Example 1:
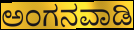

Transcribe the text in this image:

ಅಂಗನವಾಡಿ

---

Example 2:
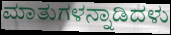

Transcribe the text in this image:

ಮಾತುಗಳನ್ನಾಡಿದಳು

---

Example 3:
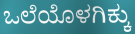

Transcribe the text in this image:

ಒಲೆಯೊಳಗಿಕ್ಕು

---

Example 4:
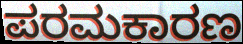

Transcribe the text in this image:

ಪರಮಕಾರಣ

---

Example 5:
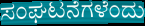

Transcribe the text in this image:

ಸಂಘಟನೆಗಳೆಂದು